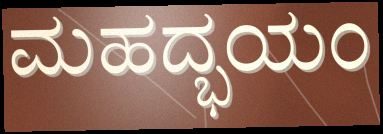
ಮಹದ್ಭಯಂ